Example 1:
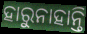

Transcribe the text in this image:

ହାରୁନାହାନ୍ତି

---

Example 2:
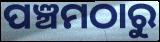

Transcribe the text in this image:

ପଞ୍ଚମଠାରୁ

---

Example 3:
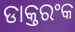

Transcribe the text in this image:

ଡାକ୍ତରଂକ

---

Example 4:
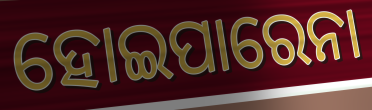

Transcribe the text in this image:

ହୋଇପାରେନା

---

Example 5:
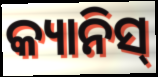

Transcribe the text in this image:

କ୍ୟାନିସ୍